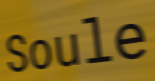
Soule